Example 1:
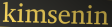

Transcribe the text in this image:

kimsenin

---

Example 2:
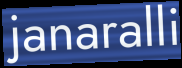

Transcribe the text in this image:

janaralli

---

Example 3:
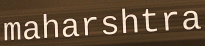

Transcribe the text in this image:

maharshtra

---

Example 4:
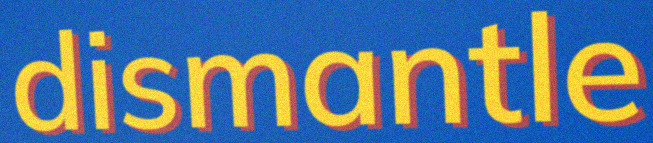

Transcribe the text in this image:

dismantle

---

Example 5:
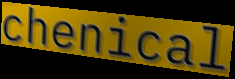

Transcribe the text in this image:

chenical